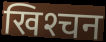
खिश्चन